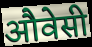
औवेसी